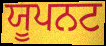
ਯੂਪਨਟ